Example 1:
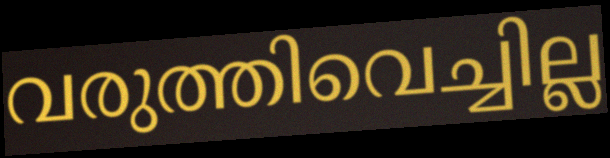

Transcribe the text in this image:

വരുത്തിവെച്ചില്ല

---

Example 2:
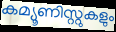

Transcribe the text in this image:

കമ്യൂണിസ്റ്റുകളും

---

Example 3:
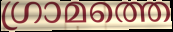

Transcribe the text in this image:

ഗ്രാമത്തെ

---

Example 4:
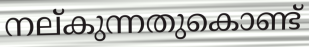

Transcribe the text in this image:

നല്കുന്നതുകൊണ്ട്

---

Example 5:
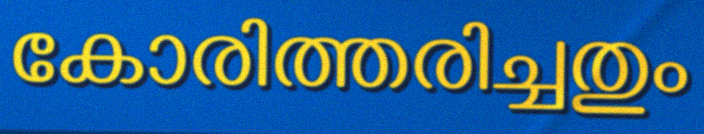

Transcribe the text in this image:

കോരിത്തരിച്ചതും